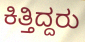
ಕಿತ್ತಿದ್ದರು